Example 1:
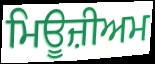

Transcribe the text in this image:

ਮਿਊਜ਼ੀਅਮ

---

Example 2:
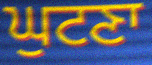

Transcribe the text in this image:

ਘੁਟਣਾ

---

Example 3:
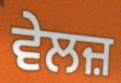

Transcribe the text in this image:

ਵੇਲਜ਼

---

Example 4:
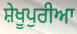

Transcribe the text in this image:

ਸ਼ੇਖੂਪੁਰੀਆ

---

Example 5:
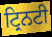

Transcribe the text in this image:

ਟ੍ਰਿਨਟੀ